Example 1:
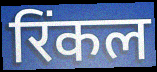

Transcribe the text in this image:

रिंकल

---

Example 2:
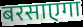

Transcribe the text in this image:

बरसाएगा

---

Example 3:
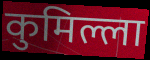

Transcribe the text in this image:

कुमिल्ला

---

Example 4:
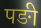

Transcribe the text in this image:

पङी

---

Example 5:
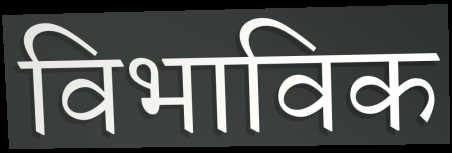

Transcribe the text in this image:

विभाविक